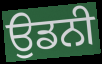
ਉਡਨੀ